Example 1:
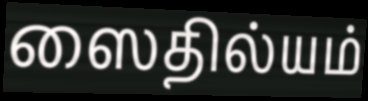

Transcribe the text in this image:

ஸைதில்யம்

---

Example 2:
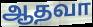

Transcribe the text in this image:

ஆதவா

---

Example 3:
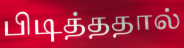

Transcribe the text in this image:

பிடித்ததால்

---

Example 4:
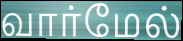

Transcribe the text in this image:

வார்மேல்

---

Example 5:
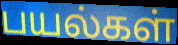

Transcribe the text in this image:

பயல்கள்